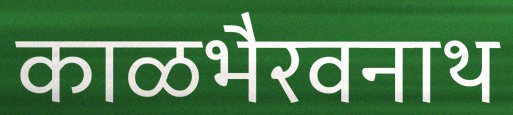
काळभैरवनाथ